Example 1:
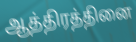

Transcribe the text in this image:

ஆத்திரத்தினை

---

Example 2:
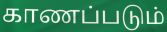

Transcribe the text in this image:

காணப்படும்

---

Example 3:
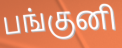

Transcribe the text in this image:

பங்குனி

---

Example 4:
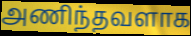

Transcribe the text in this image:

அணிந்தவளாக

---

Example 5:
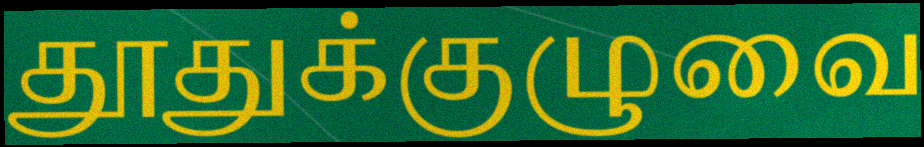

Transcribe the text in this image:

தூதுக்குழுவை